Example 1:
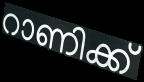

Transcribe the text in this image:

റാണിക്ക്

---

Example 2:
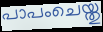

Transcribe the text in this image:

പാപംചെയ്തു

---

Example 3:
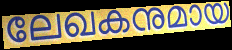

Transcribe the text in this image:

ലേഖകനുമായ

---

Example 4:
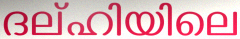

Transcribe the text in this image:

ദല്ഹിയിലെ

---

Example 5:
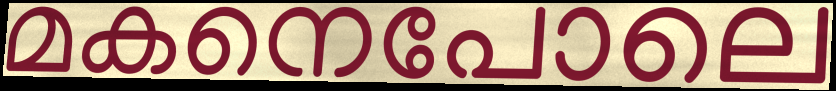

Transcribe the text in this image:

മകനെപോലെ